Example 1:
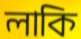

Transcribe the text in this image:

লাকি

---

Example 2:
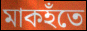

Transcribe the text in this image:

মাকহঁতে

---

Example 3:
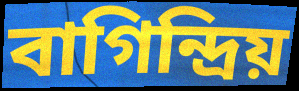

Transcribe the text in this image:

বাগিন্দ্ৰিয়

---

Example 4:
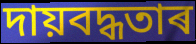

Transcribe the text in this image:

দায়বদ্ধতাৰ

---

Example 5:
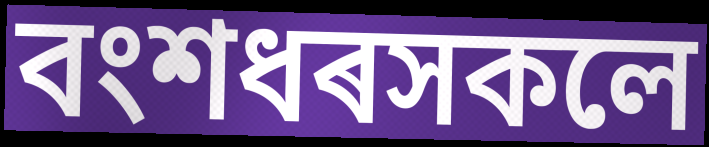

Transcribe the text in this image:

বংশধৰসকলে